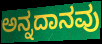
ಅನ್ನದಾನವು